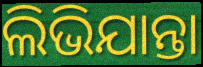
ଲିଭିଯାନ୍ତା